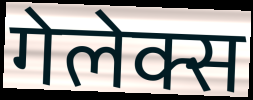
गेलेक्स